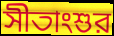
সীতাংশুর